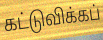
கட்டுவிக்கப்